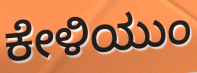
ಕೇಳಿಯುಂ